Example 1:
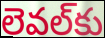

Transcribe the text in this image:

లెవల్‌కు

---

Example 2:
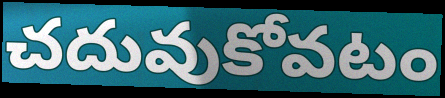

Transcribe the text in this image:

చదువుకోవటం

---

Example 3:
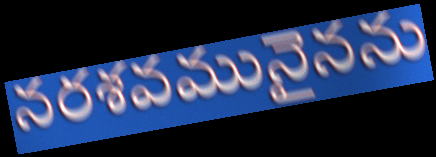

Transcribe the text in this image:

నరశవమునైనను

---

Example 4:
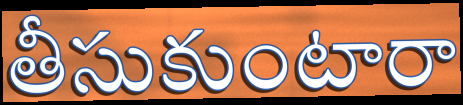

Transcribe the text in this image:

తీసుకుంటారా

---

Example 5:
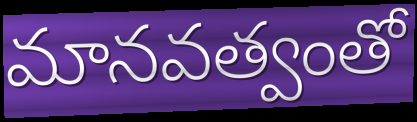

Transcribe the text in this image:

మానవత్వంతో